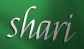
shari